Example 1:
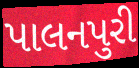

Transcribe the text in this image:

પાલનપુરી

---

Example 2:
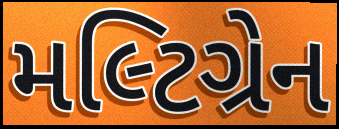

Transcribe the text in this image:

મલ્ટિગ્રેન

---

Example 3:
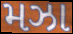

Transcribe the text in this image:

મઝા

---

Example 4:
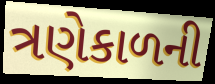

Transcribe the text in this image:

ત્રણેકાળની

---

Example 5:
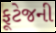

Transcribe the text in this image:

ફૂટેજની